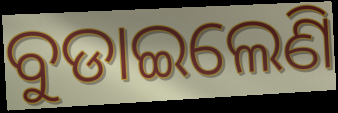
ବୁଡାଇଲେଣି